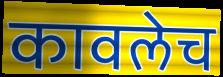
कावलेच